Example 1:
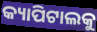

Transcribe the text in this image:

କ୍ୟାପିଟାଲକୁ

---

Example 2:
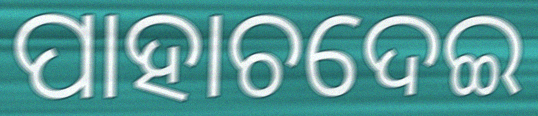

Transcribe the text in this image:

ପାହାଚଦେଇ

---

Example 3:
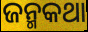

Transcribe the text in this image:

ଜନ୍ମକଥା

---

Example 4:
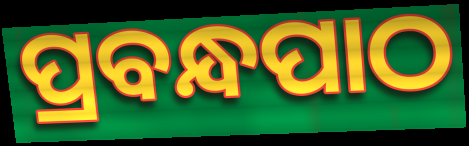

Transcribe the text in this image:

ପ୍ରବନ୍ଧପାଠ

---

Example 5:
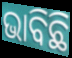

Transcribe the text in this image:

ଭାବିଛି